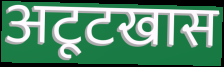
अटूटखास